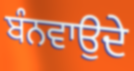
ਬੰਨਵਾਉਦੇ